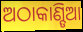
ଅଠାକାଣ୍ଡିଆ